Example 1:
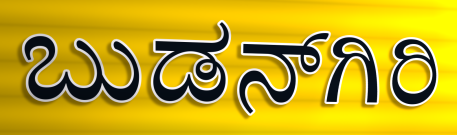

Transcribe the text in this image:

ಬುಡನ್‍ಗಿರಿ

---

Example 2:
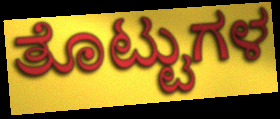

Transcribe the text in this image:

ತೊಟ್ಟುಗಳ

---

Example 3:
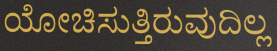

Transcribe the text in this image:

ಯೋಚಿಸುತ್ತಿರುವುದಿಲ್ಲ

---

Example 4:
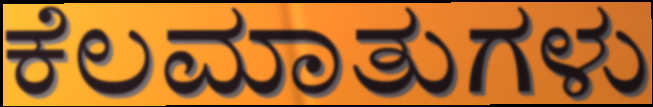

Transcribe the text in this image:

ಕೆಲಮಾತುಗಳು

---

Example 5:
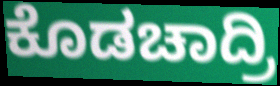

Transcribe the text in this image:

ಕೊಡಚಾದ್ರಿ